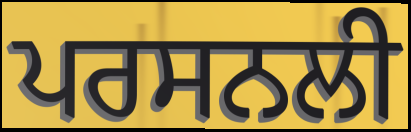
ਪਰਸਨਲੀ